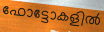
ഫോട്ടോകളിൽ